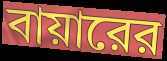
বায়ারের